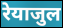
रेयाजुल